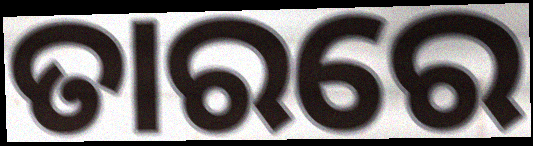
ତାରରେ